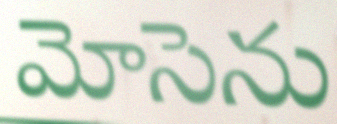
మోసెను